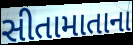
સીતામાતાના